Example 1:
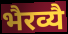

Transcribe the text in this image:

भैरव्यै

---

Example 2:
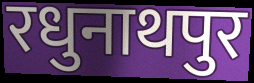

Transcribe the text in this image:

रधुनाथपुर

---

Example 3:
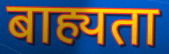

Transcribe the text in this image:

बाह्यता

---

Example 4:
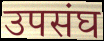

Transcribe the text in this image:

उपसंघ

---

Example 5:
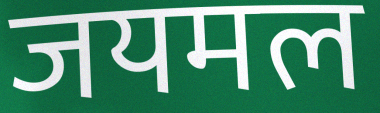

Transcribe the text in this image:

जयमल